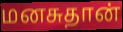
மனசுதான்